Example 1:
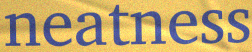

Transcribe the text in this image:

neatness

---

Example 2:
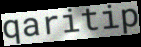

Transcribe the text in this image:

qaritip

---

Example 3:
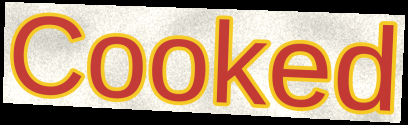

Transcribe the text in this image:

Cooked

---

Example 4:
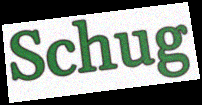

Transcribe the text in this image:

Schug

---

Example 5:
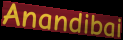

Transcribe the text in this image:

Anandibai